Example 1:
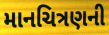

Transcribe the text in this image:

માનચિત્રણની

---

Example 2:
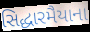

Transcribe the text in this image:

સિદ્ધારમૈયાના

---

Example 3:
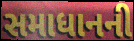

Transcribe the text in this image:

સમાધાનની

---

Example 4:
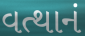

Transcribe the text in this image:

વત્થાનં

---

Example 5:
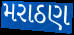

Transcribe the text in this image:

મરાઠણ